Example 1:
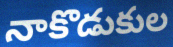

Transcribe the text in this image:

నాకొడుకుల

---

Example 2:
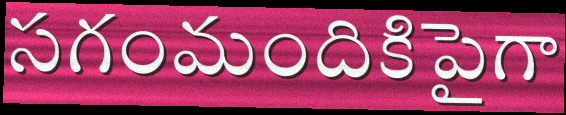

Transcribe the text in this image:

సగంమందికిపైగా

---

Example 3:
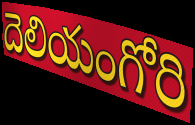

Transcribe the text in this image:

దెలియంగోరి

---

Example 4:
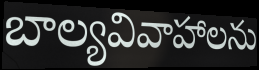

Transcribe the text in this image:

బాల్యవివాహాలను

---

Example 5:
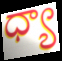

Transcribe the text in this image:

ధ్యా